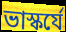
ভাস্কর্যে